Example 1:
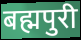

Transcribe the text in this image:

बह्मपुरी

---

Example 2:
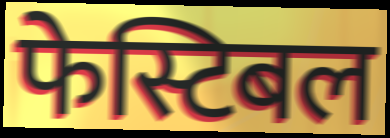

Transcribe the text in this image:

फेस्टिबल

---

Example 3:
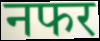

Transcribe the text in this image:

नफर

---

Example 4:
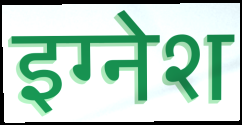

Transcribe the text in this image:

इग्नेश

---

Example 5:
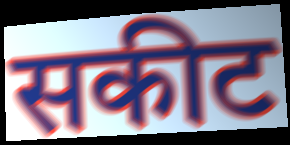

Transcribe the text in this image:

सकीट